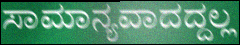
ಸಾಮಾನ್ಯವಾದದ್ದಲ್ಲ